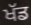
ਖੱਡ